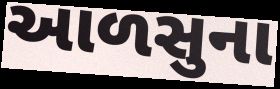
આળસુના